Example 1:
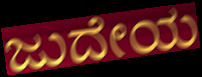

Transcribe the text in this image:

ಜುದೇಯ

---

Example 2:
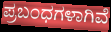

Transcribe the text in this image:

ಪ್ರಬಂಧಗಳಾಗಿವೆ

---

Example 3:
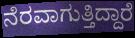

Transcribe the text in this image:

ನೆರವಾಗುತ್ತಿದ್ದಾರೆ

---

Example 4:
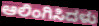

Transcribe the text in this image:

ಆಲಿಂಗಿಸಿದಳು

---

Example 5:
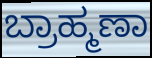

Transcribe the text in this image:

ಬ್ರಾಹ್ಮಣಾ